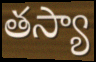
తస్యా